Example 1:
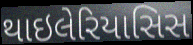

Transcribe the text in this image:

થાઇલેરિયાસિસ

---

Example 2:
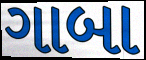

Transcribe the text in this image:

ગાબા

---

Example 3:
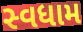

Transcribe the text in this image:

સ્વધામ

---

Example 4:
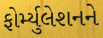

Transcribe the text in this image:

ફોર્મ્યુલેશનને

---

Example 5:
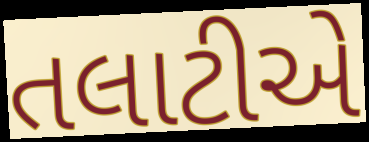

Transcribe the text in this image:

તલાટીએ